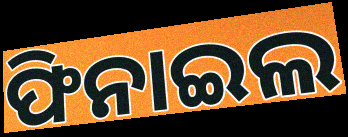
ଫିନାଇଲ